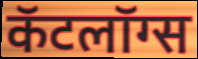
कॅटलॉग्स